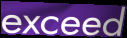
exceed